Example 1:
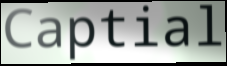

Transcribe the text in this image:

Captial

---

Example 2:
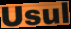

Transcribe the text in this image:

Usul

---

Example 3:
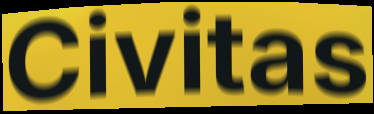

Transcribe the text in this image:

Civitas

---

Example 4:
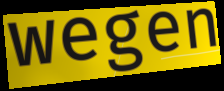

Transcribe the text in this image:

wegen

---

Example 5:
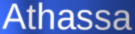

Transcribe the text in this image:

Athassa